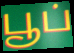
பூப்